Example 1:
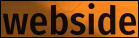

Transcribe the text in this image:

webside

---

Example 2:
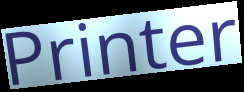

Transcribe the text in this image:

Printer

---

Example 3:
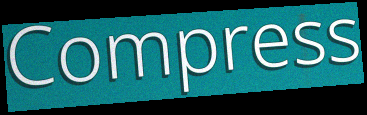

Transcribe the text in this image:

Compress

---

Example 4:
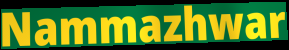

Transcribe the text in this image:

Nammazhwar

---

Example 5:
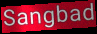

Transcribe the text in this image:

Sangbad